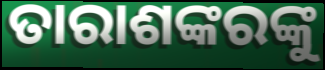
ତାରାଶଙ୍କରଙ୍କୁ